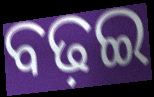
ବଢ଼ଇ